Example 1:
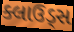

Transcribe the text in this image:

ક્લાઉડ્સ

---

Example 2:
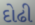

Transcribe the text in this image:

દોઢી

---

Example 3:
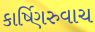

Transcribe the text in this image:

કાર્ષ્ણિરુવાચ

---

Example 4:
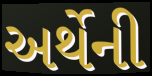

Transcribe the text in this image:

અર્થેની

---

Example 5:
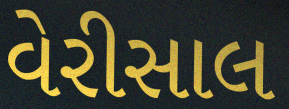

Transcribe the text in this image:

વેરીસાલ